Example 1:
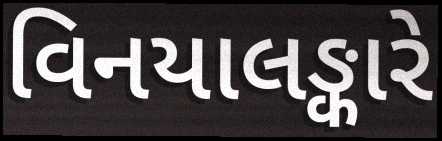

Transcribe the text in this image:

વિનયાલઙ્કારે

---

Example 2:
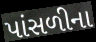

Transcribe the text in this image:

પાંસળીના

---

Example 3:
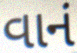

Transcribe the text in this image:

વાનં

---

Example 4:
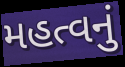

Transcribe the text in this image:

મહત્વનું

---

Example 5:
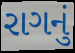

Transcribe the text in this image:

રાગનું